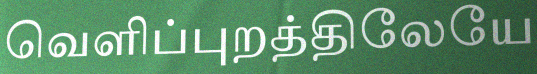
வெளிப்புறத்திலேயே